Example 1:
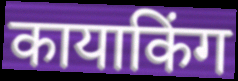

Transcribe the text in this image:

कायाकिंग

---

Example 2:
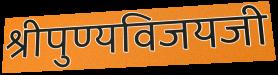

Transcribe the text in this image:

श्रीपुण्यविजयजी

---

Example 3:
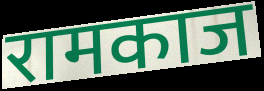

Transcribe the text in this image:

रामकाज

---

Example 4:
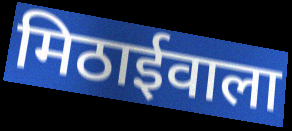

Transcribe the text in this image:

मिठाईवाला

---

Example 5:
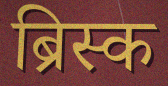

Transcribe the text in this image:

ब्रिस्क